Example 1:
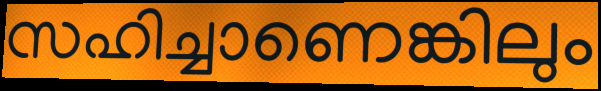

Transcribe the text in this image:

സഹിച്ചാണെങ്കിലും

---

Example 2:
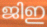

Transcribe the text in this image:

ജിഇ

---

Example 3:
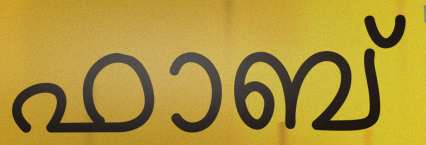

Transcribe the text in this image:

ഫാബ്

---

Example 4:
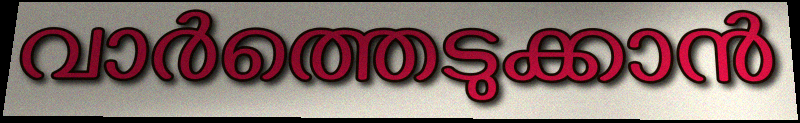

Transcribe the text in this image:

വാർത്തെടുക്കാൻ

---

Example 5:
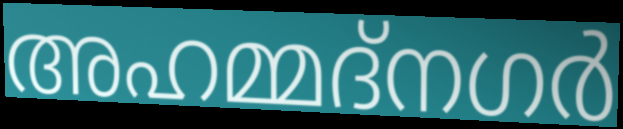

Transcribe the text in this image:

അഹമ്മദ്നഗർ